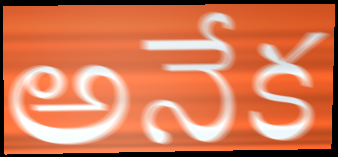
అనేక